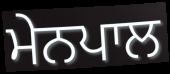
ਮੇਨਪਾਲ